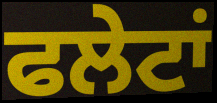
ਫਲੇਟਾਂ